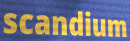
scandium